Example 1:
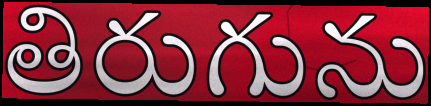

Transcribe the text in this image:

తిరుగును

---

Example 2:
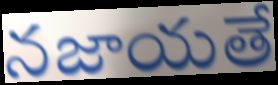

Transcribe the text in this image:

నజాయతే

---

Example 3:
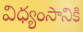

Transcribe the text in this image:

విధ్యంసానికి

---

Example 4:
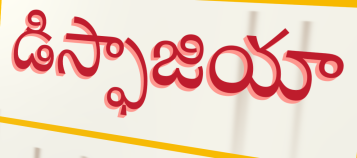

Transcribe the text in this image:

డిస్ఫాజియా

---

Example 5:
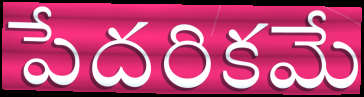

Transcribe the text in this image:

పేదరికమే